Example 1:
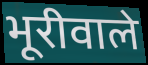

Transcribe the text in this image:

भूरीवाले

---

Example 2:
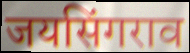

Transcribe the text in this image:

जयसिंगराव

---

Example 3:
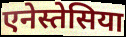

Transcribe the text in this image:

एनेस्तेसिया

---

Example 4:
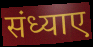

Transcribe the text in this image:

संध्याए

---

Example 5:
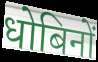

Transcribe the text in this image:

धोबिनों